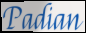
Padian